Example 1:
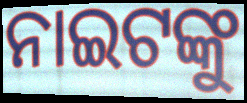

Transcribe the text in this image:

ନାଇଟଙ୍କୁ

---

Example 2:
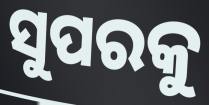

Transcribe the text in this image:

ସୁପରକୁ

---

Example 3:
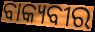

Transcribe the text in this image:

ବାକ୍ୟବୀର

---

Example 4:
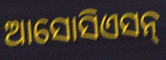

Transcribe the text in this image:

ଆସୋସିଏସନ୍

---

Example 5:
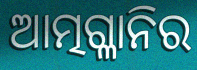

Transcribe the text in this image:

ଆତ୍ମଗ୍ଳାନିର